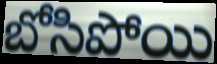
బోసిపోయి